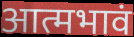
आत्मभावं